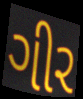
ગીર